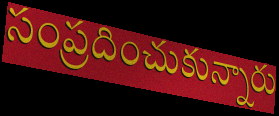
సంప్రదించుకున్నారు